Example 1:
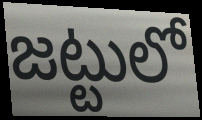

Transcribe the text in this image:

జట్టులో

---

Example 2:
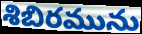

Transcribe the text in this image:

శిబిరమును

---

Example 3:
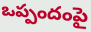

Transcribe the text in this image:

ఒప్పందంపై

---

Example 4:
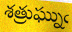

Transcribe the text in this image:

శత్రుఘ్నుఁ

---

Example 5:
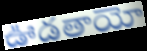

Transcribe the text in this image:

ఊడతాయో